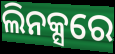
ଲିନକ୍ସରେ